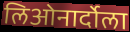
लिओनार्दोला